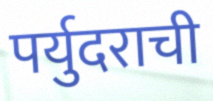
पर्युदराची